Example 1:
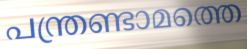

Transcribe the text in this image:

പന്ത്രണ്ടാമത്തെ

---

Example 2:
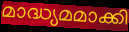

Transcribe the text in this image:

മാദ്ധ്യമമാക്കി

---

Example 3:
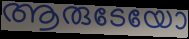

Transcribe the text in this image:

ആരുടേയോ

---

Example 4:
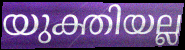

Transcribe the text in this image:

യുക്തിയല്ല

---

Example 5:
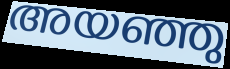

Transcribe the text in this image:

അയഞ്ഞു